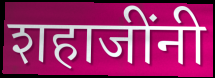
शहाजींनी